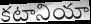
కటానియా